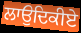
ਲਾਉਦਿਕੀਏ